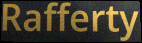
Rafferty